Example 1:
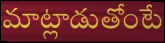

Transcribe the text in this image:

మాట్లాడుతోంటే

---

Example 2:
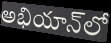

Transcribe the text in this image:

అభియాన్‌లో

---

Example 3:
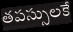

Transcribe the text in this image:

తపస్సులకే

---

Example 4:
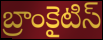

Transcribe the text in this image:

బ్రాంకైటిస్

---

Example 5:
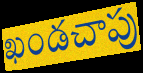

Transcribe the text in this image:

ఖండచాపు